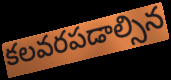
కలవరపడాల్సిన